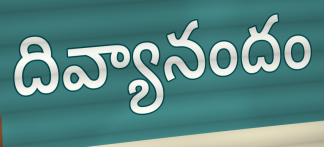
దివ్యానందం